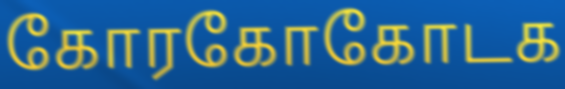
கோரகோகோடக